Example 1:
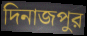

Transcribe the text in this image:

দিনাজপুর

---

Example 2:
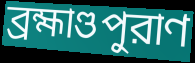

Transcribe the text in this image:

ব্রহ্মাণ্ডপুরাণ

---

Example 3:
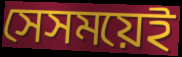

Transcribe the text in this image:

সেসময়েই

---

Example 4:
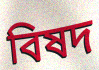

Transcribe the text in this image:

বিষদ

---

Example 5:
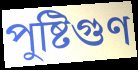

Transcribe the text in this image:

পুষ্টিগুণ